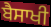
ਬੈਸਾਖੀ